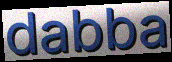
dabba